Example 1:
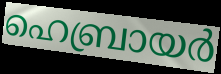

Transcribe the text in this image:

ഹെബ്രായർ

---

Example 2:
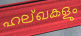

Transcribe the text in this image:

ഹല്ഖകളും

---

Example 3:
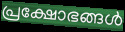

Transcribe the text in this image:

പ്രക്ഷോഭങ്ങൾ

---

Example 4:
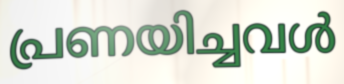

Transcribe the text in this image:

പ്രണയിച്ചവൾ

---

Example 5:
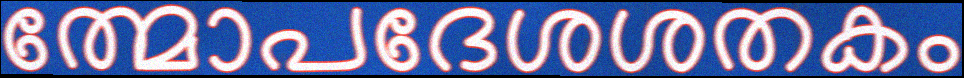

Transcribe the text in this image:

ത്മോപദേശശതകം